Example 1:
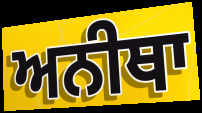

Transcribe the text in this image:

ਅਨੀਥਾ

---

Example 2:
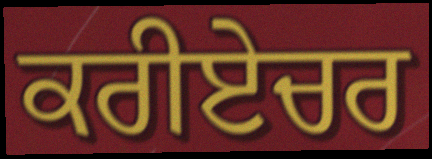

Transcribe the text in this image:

ਕਰੀਏਚਰ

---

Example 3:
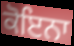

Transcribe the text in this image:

ਕੋਇਨਾ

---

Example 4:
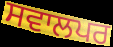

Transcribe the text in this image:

ਸਵਾਲਪਰ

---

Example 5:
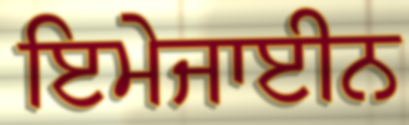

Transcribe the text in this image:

ਇਮੇਜਾਈਨ